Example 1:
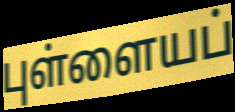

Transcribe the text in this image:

புள்ளையப்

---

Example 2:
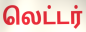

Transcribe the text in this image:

லெட்டர்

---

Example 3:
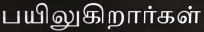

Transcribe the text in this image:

பயிலுகிறார்கள்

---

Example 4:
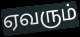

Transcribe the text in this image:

ஏவரும்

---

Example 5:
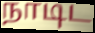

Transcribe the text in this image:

நாடிட